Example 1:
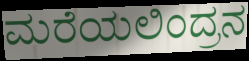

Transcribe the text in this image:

ಮರೆಯಲಿಂದ್ರನ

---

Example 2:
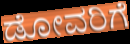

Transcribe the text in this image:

ಡೋವರಿಗೆ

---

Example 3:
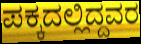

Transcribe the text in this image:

ಪಕ್ಕದಲ್ಲಿದ್ದವರ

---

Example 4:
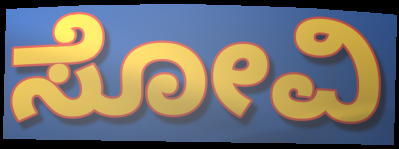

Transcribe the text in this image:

ಸೋವಿ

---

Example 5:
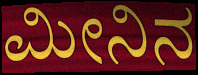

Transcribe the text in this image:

ಮೀನಿನ